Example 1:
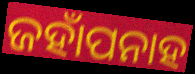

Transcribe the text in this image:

ଜହାଁପନାହ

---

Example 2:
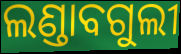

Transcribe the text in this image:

ଲଣ୍ଡାବଗୁଲୀ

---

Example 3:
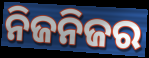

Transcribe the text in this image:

ନିଜନିଜର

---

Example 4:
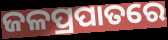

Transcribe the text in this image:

ଜଳପ୍ରପାତରେ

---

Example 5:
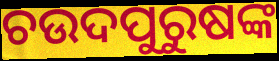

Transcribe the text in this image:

ଚଉଦପୁରୁଷଙ୍କ